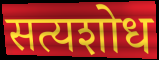
सत्यशोध